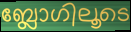
ബ്ലോഗിലൂടെ